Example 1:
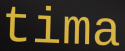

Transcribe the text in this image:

tima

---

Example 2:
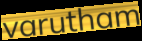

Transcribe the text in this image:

varutham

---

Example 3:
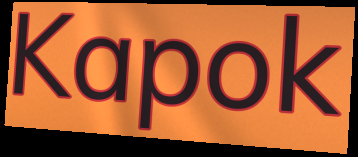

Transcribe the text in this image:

Kapok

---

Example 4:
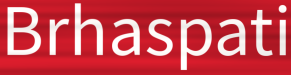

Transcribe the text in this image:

Brhaspati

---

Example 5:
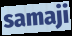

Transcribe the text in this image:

samaji